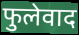
फुलेवाद